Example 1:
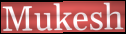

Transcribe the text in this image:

Mukesh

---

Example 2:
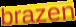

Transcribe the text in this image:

brazen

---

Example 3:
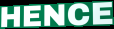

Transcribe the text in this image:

HENCE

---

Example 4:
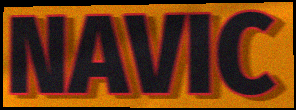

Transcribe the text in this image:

NAVIC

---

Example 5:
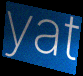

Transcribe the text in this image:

yat